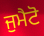
ਜੁਮੈਟੋ